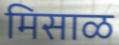
मिसाळ